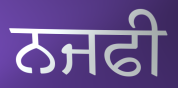
ਨਜਫੀ